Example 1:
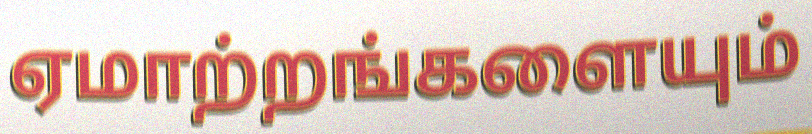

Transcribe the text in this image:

ஏமாற்றங்களையும்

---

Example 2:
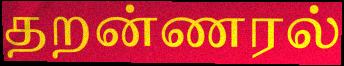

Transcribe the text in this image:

தறன்ணரல்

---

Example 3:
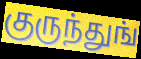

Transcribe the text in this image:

குருந்துங்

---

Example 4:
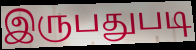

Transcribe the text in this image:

இருபதுபடி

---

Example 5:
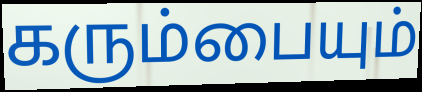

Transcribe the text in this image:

கரும்பையும்